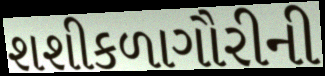
શશીકળાગૌરીની